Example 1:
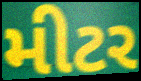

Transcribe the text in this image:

મીટર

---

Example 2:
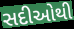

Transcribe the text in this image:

સદીઓથી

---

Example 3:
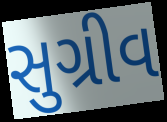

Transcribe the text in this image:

સુગ્રીવ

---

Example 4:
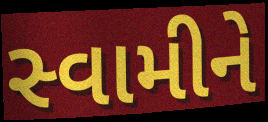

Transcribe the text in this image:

સ્વામીને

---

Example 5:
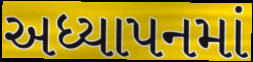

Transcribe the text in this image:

અધ્યાપનમાં